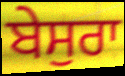
ਬੇਸੁਰਾ